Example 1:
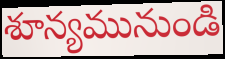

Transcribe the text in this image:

శూన్యమునుండి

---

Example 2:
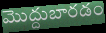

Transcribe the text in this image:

మొద్దుబారడం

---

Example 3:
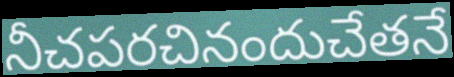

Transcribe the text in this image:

నీచపరచినందుచేతనే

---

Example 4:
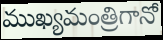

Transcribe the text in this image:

ముఖ్యమంత్రిగానో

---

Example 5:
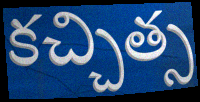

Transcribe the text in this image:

కచ్చిత్స